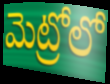
మెట్రోలో